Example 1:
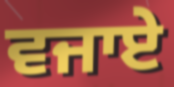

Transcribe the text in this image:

ਵਜਾਏ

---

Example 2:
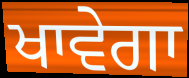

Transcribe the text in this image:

ਖਾਵੇਗਾ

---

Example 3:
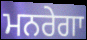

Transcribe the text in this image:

ਮਨਰੇਗਾ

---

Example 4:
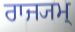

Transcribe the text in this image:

ਰਾਜ੍ਯਮ੍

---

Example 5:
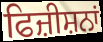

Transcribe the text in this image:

ਫਿਜ਼ੀਸ਼ਨਾਂ